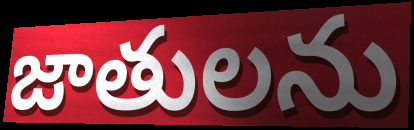
జాతులను